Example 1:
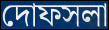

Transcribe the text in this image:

দোফসলা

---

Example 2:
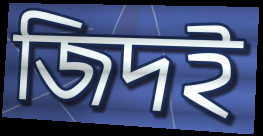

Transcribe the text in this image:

জিদই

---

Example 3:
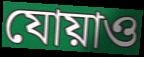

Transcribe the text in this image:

যোয়াও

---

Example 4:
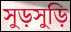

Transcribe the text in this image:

সুড়সুড়ি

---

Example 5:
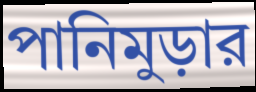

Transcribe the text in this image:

পানিমুড়ার